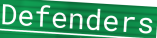
Defenders